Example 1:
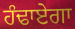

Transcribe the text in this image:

ਹੰਢਾਏਗਾ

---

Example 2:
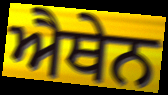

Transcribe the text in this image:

ਐਥੇਨ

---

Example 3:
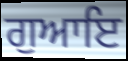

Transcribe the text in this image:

ਗੁਆਇ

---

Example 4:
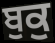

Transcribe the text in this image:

ਬੁਕੁ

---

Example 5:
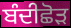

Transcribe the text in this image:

ਬੰਦੀਛੋੜ